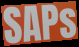
SAPs